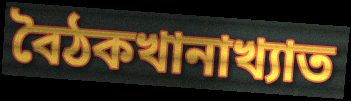
বৈঠকখানাখ্যাত